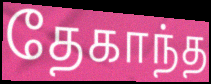
தேகாந்த